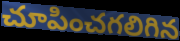
చూపించగలిగిన